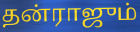
தன்ராஜும்